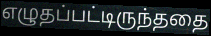
எழுதப்பட்டிருந்ததை